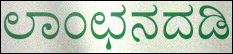
ಲಾಂಛನದಡಿ